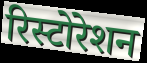
रिस्टोरेशन